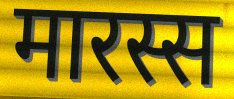
मारस्स